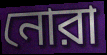
নোরা